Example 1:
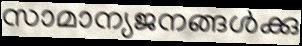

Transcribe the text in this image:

സാമാന്യജനങ്ങൾക്കു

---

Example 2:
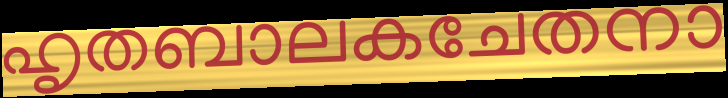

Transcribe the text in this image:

ഹൃതബാലകചേതനാ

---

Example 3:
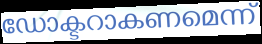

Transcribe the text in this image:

ഡോക്ടറാകണമെന്ന്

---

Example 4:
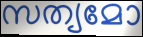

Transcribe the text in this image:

സത്യമോ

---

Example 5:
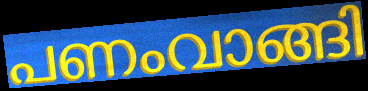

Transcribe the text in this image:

പണംവാങ്ങി